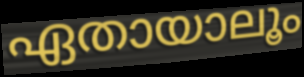
ഏതായാലൂം